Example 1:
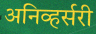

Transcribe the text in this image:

अनिव्हर्सरी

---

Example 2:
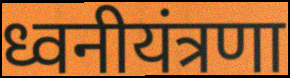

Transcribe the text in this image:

ध्वनीयंत्रणा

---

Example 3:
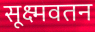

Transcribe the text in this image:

सूक्ष्मवतन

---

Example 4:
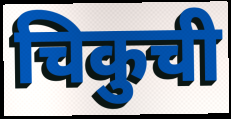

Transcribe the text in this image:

चिकुची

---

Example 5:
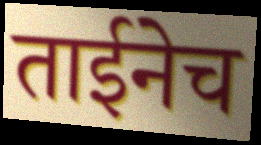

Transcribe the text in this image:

ताईनेच